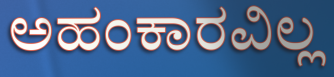
ಅಹಂಕಾರವಿಲ್ಲ